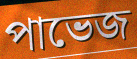
পাভেজ